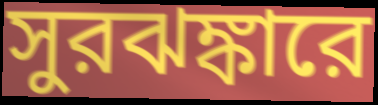
সুরঝঙ্কারে